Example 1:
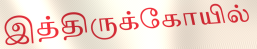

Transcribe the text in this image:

இத்திருக்கோயில்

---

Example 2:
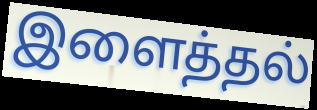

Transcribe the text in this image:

இளைத்தல்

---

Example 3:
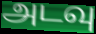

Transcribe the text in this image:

அடவு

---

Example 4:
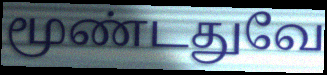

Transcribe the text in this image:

மூண்டதுவே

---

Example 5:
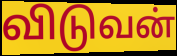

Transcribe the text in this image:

விடுவன்